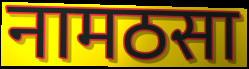
नामठसा